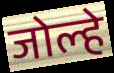
जोल्हे